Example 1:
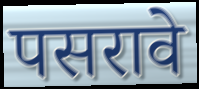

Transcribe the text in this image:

पसरावे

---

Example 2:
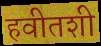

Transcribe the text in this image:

हवीतशी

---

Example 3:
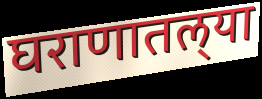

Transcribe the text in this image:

घराणातल्या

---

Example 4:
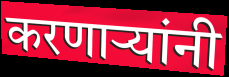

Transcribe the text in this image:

करणाऱ्यांनी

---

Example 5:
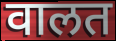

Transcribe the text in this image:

वालत